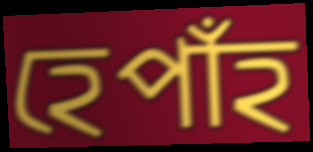
হেপাঁহ